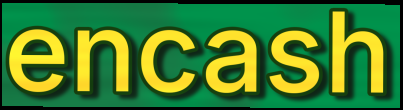
encash